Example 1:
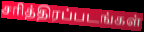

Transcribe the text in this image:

சரித்திரப்படங்கள்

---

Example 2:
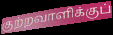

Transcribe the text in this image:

குற்றவாளிக்குப்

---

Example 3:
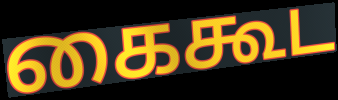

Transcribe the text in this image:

கைகூட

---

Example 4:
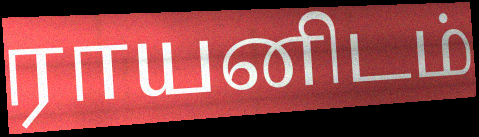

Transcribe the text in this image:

ராயனிடம்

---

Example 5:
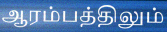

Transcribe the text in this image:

ஆரம்பத்திலும்